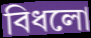
বিধলো